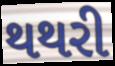
થથરી